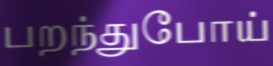
பறந்துபோய்